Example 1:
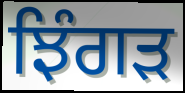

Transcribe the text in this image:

ਝਿੰਗੜ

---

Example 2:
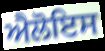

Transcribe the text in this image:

ਐਲੋਇਸ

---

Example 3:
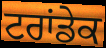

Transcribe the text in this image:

ਟਰਾਂਡੇਕ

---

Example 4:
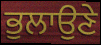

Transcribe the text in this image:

ਭੁਲਾਉਣੇ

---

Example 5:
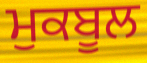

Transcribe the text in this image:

ਮੁਕਬੂਲ